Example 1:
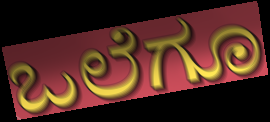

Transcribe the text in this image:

ಒಲೆಗೂ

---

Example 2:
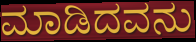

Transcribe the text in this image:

ಮಾಡಿದವನು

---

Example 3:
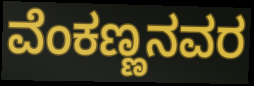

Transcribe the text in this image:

ವೆಂಕಣ್ಣನವರ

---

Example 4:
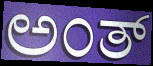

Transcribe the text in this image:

ಅಂತ್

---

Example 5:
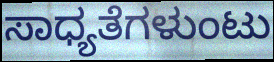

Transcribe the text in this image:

ಸಾಧ್ಯತೆಗಳುಂಟು